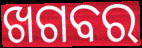
ଖଗବର